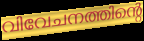
വിവേചനത്തിന്റെ